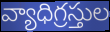
వ్యాధిగ్రస్తుల